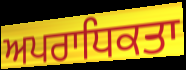
ਅਪਰਾਧਿਕਤਾ